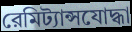
রেমিট্যান্সযোদ্ধা